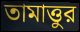
তামাত্তুর